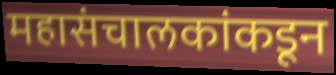
महासंचालकांकडून